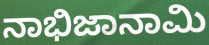
ನಾಭಿಜಾನಾಮಿ